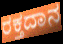
ರಕ್ತದಾನ